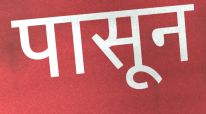
पासून